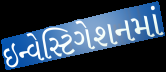
ઇન્વેસ્ટિગેશનમાં